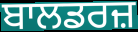
ਬਾਲਡਰਜ਼